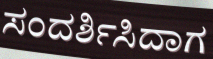
ಸಂದರ್ಶಿಸಿದಾಗ